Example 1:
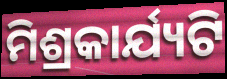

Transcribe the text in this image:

ମିଶ୍ରକାର୍ଯ୍ୟଟି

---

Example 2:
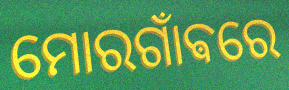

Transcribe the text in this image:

ମୋରଗାଁଵରେ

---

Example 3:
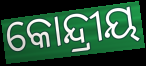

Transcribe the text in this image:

କୋନ୍ଦ୍ରୀୟ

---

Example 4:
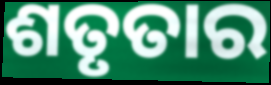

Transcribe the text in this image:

ଶତୃତାର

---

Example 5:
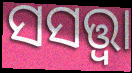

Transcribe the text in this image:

ସସତ୍ତ୍ୱା